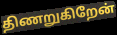
திணறுகிறேன்